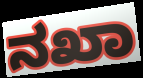
ನಖಾ